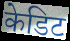
केडिट